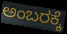
ಅಂಬರಕ್ಕೆ